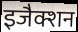
इजैक्शन